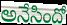
అనేసిందో